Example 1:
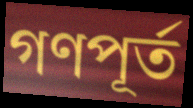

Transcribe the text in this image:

গণপূর্ত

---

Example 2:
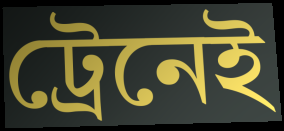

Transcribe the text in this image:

ট্রেনেই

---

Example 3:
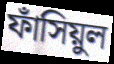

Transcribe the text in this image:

ফাঁসিয়ুল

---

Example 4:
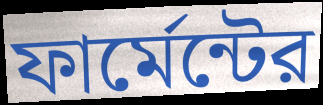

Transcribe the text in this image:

ফার্মেন্টের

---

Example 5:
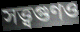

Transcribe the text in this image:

সত্ত্বগুণও